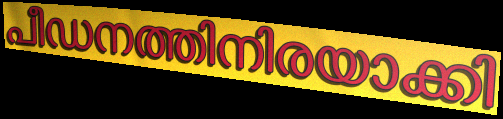
പീഡനത്തിനിരയാക്കി